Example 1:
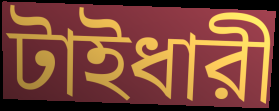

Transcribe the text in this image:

টাইধারী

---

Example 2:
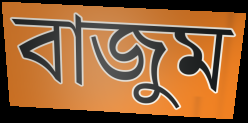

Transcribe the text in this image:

বাজুম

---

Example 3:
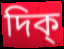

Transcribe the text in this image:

দিক্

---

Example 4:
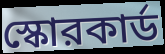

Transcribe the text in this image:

স্কোরকার্ড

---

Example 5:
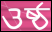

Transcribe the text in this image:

ওষ্ঠ